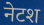
नेटश